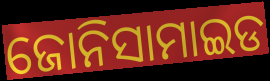
ଜୋନିସାମାଇଡ